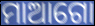
ମାଆଗୋ